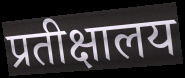
प्रतीक्षालय